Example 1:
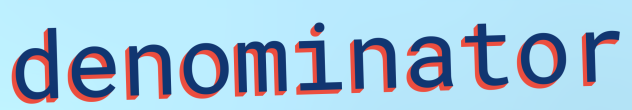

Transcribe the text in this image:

denominator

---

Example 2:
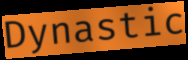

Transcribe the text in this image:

Dynastic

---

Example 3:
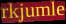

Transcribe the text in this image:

rkjumle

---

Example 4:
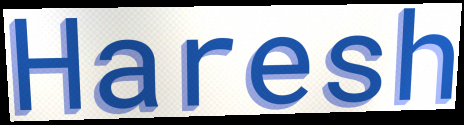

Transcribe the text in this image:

Haresh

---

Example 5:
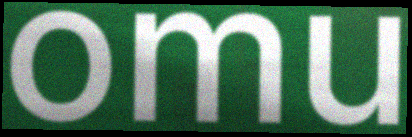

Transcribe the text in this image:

omu